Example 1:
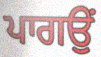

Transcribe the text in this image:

ਪਾਗਉਂ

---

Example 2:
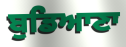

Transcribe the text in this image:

ਬੁਡਿਆਣਾ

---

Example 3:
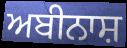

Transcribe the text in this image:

ਅਬੀਨਾਸ਼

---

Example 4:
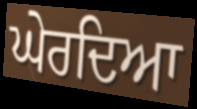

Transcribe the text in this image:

ਘੇਰਦਿਆ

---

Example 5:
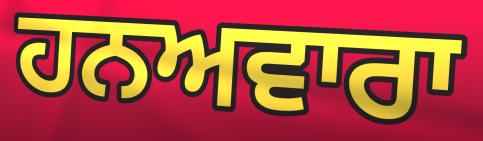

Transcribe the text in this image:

ਹਨਅਵਾਰਾ